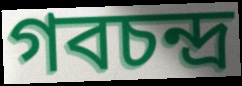
গবচন্দ্র